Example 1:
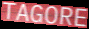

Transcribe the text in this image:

TAGORE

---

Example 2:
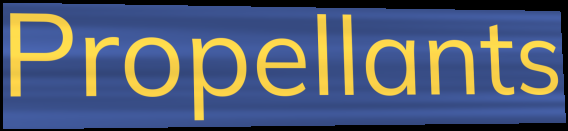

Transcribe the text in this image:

Propellants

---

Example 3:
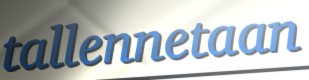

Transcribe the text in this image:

tallennetaan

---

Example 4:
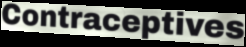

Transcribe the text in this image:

Contraceptives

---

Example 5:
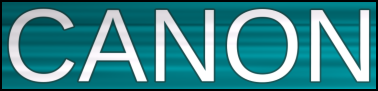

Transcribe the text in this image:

CANON